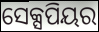
ସେକ୍ସପିୟର